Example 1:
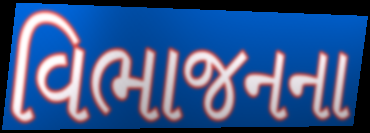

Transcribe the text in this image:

વિભાજનના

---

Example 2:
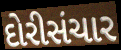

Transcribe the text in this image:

દોરીસંચાર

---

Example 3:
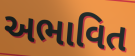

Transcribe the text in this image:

અભાવિત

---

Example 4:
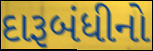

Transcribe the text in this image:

દારૂબંધીનો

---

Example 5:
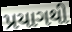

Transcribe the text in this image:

પ્રયાગથી